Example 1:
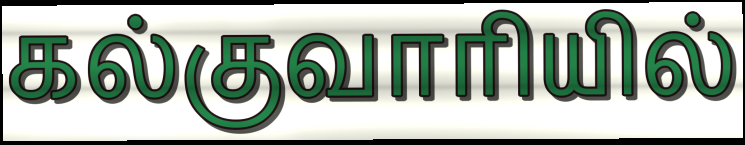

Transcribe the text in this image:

கல்குவாரியில்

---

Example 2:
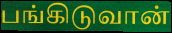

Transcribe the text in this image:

பங்கிடுவான்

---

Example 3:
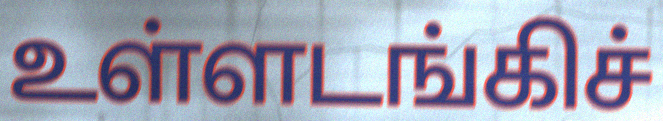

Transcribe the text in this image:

உள்ளடங்கிச்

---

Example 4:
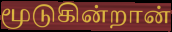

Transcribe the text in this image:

மூடுகின்றான்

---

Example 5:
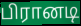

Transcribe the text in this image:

பிரானடி